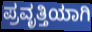
ಪ್ರವೃತ್ತಿಯಾಗಿ